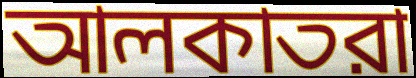
আলকাতরা